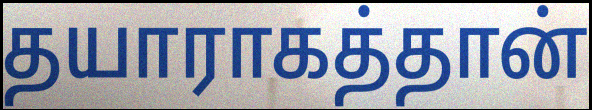
தயாராகத்தான்